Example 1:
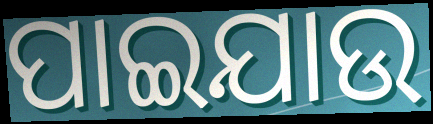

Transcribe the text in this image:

ପାଇଯାଉ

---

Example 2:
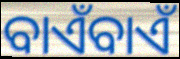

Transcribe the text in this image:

ବାଏଁବାଏଁ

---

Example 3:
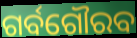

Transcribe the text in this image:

ଗର୍ବଗୌରବ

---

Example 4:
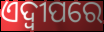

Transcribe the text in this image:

ଏଦ୍ୱୀପରେ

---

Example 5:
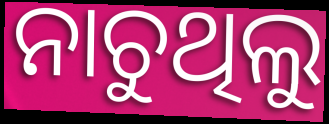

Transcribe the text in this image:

ନାଚୁଥିଲୁ